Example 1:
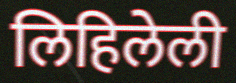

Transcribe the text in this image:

लिहिलेली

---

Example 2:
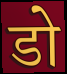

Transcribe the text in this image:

डो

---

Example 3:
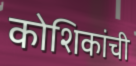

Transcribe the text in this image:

कोशिकांची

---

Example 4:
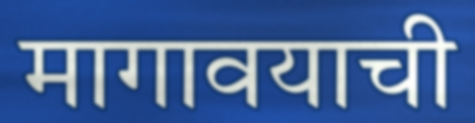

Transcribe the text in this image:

मागावयाची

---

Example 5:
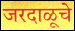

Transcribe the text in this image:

जरदाळूचे